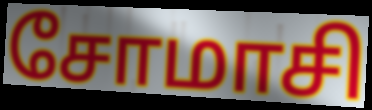
சோமாசி